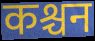
कश्चन